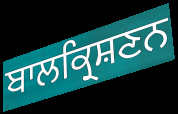
ਬਾਲਕ੍ਰਿਸ਼ਣਨ